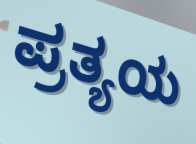
ಪ್ರತ್ಯಯ